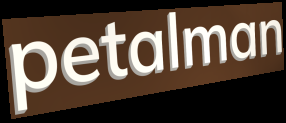
petalman